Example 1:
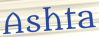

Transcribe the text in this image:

Ashta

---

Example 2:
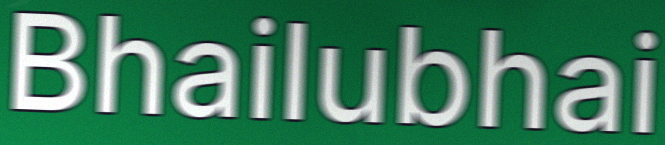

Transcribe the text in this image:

Bhailubhai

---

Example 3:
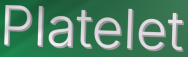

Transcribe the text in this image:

Platelet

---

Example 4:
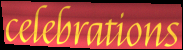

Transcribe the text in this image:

celebrations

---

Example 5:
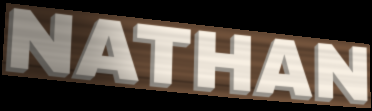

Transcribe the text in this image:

NATHAN